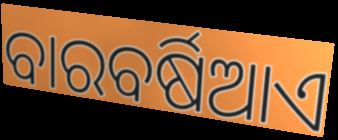
ବାରବର୍ଷିଆଏ